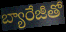
బ్యారేజీతో